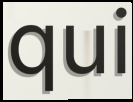
qui